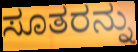
ಸೂತರನ್ನು